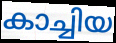
കാച്ചിയ